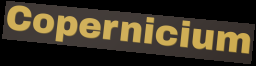
Copernicium